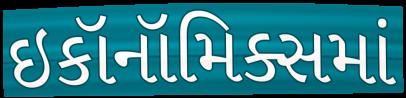
ઇકૉનૉમિક્સમાં